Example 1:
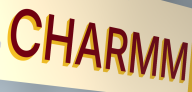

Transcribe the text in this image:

CHARMM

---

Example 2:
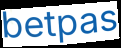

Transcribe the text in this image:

betpas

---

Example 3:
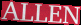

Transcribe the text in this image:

ALLEN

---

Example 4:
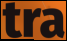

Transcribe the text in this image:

tra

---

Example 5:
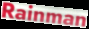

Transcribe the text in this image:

Rainman